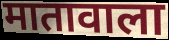
मातावाला